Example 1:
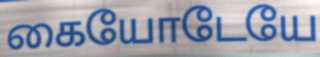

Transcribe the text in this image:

கையோடேயே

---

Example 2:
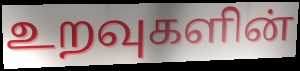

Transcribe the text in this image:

உறவுகளின்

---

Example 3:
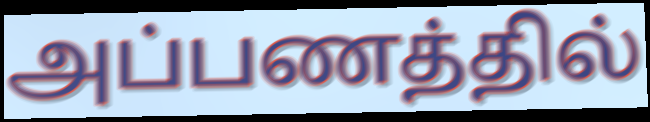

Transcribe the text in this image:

அப்பணத்தில்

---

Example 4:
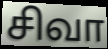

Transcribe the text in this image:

சிவா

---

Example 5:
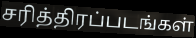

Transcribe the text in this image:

சரித்திரப்படங்கள்